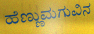
ಹೆಣ್ಣುಮಗುವಿನ